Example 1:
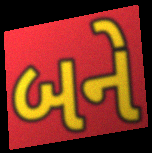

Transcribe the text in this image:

બને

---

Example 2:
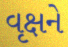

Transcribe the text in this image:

વૃક્ષને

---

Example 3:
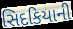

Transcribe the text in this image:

સિદકિયાની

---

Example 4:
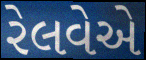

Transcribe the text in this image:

રેલવેએ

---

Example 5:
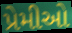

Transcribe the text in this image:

પ્રેમીઓ